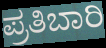
ಪ್ರತಿಬಾರಿ